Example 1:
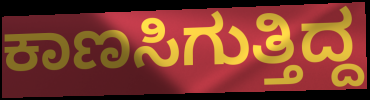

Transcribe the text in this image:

ಕಾಣಸಿಗುತ್ತಿದ್ದ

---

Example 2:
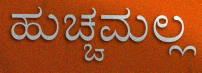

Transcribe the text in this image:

ಹುಚ್ಚಮಲ್ಲ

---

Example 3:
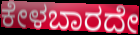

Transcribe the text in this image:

ಕೇಳಬಾರದೇ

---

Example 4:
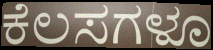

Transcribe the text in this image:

ಕೆಲಸಗಳೂ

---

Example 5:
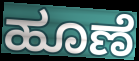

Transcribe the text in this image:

ಹೂಣೆ